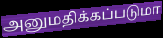
அனுமதிக்கப்படுமா